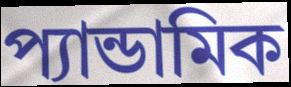
প্যান্ডামিক